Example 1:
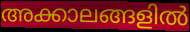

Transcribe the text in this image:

അക്കാലങ്ങളിൽ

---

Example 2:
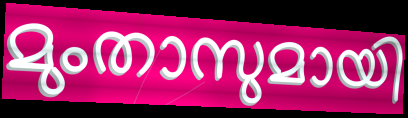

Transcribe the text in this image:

മുംതാസുമായി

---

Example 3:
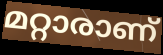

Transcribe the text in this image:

മറ്റാരാണ്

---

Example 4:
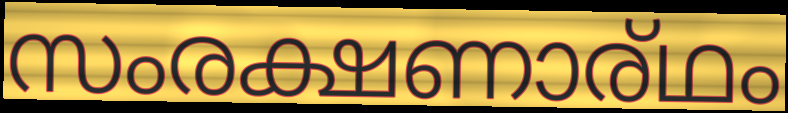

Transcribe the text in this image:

സംരക്ഷണാര്ഥം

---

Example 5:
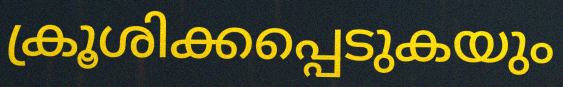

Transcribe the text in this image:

ക്രൂശിക്കപ്പെടുകയും